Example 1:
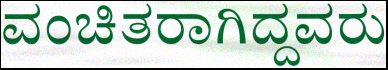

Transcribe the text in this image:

ವಂಚಿತರಾಗಿದ್ದವರು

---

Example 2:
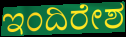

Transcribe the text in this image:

ಇಂದಿರೇಶ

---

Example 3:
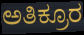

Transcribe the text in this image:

ಅತಿಕ್ರೂರ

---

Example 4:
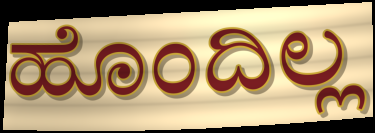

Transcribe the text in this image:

ಹೊಂದಿಲ್ಲ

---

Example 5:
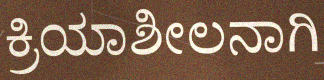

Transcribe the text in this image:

ಕ್ರಿಯಾಶೀಲನಾಗಿ